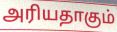
அரியதாகும்